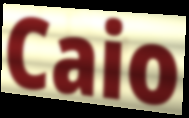
Caio